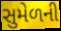
સુમેળની